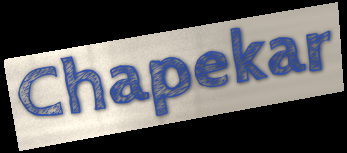
Chapekar